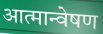
आत्मान्वेषण